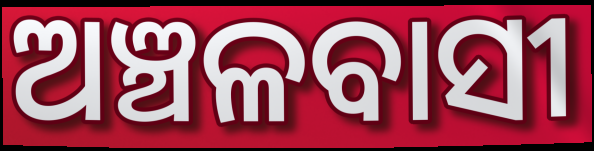
ଅଞ୍ଚଳବାସୀ